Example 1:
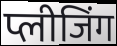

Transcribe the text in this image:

प्लीजिंग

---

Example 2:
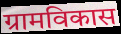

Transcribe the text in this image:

ग्रामविकास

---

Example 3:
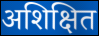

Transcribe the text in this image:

अशिक्षित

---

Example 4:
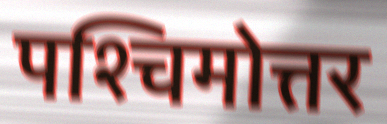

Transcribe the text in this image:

पश्चिमोत्तर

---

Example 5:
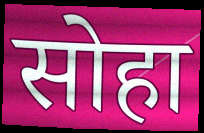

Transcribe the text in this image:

सोहा